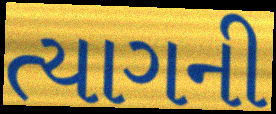
ત્‍યાગની